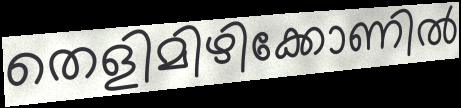
തെളിമിഴിക്കോണിൽ